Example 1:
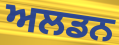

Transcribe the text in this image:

ਅਲਡਨ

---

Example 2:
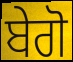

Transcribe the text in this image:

ਬੇਗੋ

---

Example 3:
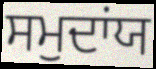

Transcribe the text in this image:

ਸਮੁਦਾਂਯ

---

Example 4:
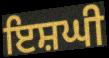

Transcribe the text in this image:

ਇਸ਼ਘੀ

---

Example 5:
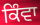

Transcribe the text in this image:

ਕਿੰਵਾ